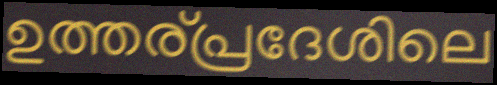
ഉത്തര്പ്രദേശിലെ